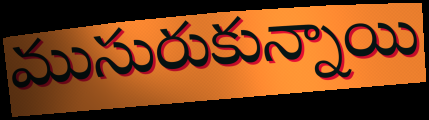
ముసురుకున్నాయి